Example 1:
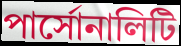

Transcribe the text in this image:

পার্সোনালিটি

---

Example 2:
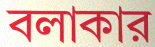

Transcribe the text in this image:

বলাকার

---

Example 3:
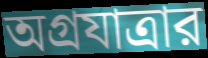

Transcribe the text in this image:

অগ্রযাত্রার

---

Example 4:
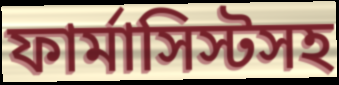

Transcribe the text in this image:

ফার্মাসিস্টসহ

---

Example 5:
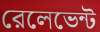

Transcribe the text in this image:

রেলেভেন্ট